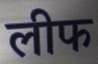
लीफ